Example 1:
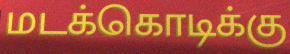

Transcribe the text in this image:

மடக்கொடிக்கு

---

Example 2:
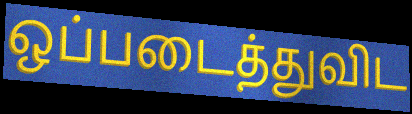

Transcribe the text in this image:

ஒப்படைத்துவிட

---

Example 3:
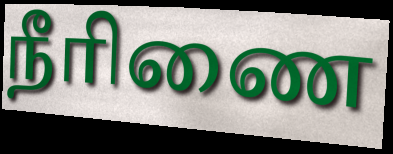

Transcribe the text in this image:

நீரிணை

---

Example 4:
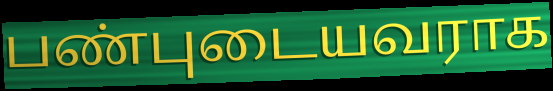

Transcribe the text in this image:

பண்புடையவராக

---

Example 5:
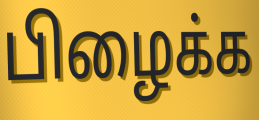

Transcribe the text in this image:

பிழைக்க